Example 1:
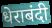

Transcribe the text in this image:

धेराबंदी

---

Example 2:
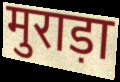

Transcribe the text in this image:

मुराड़ा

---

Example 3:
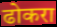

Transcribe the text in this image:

ढोकरा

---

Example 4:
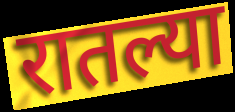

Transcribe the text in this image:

रातल्या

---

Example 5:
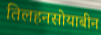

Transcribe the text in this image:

तिलहनसोयाबीन